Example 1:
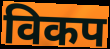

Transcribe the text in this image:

विकप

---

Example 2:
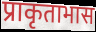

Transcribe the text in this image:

प्राकृताभास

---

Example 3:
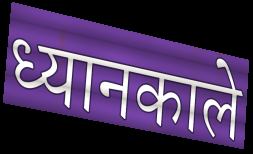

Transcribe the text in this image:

ध्यानकाले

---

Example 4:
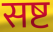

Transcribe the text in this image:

सष्ट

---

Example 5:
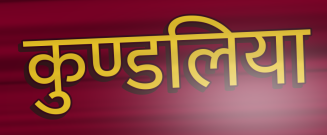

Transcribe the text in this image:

कुण्डलिया